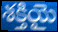
శక్తియై